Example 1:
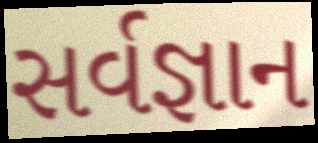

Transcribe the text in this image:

સર્વજ્ઞાન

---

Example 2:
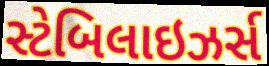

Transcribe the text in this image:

સ્ટેબિલાઇઝર્સ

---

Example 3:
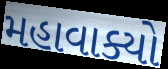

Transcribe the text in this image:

મહાવાક્યો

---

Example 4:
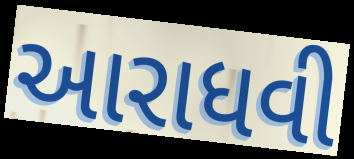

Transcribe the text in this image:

આરાધવી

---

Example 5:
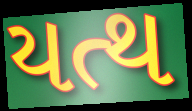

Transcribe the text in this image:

યત્થ